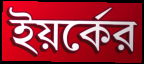
ইয়র্কের